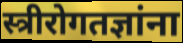
स्त्रीरोगतज्ञांना